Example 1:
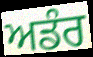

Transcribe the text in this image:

ਅਡੰਰ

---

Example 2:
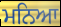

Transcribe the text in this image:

ਮਨਿਆ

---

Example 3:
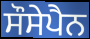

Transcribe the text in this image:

ਸੌਸੇਪੈਨ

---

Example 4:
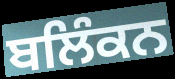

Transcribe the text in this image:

ਬਲਿੰਕਨ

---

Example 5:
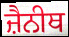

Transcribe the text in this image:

ਜ਼ੈਨੀਥ